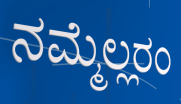
ನಮ್ಮೆಲ್ಲರಂ